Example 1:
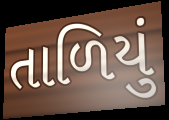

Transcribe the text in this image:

તાળિયું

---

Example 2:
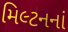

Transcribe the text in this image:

મિલ્ટનનાં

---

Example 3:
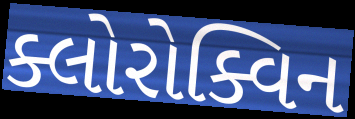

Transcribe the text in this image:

ક્લોરોક્વિન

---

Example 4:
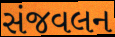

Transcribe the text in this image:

સંજવલન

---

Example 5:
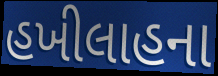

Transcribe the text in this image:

હખીલાહના